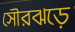
সৌরঝড়ে